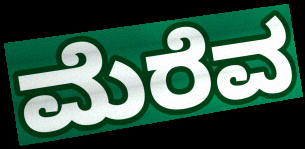
ಮೆರೆವ